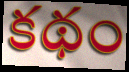
కథం